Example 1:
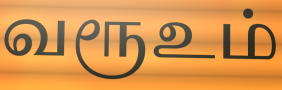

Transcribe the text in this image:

வரூஉம்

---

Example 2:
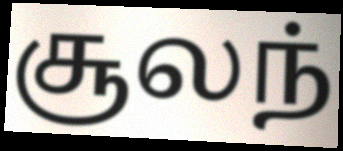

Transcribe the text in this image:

சூலந்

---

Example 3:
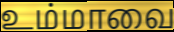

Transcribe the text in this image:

உம்மாவை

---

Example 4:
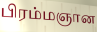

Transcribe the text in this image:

பிரம்மஞான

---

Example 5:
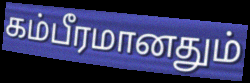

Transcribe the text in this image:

கம்பீரமானதும்